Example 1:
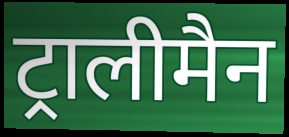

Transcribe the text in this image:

ट्रालीमैन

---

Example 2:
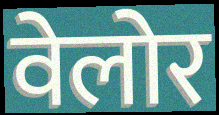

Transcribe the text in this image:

वेलोर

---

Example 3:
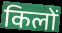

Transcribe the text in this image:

किलों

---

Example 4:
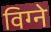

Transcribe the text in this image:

विग्ने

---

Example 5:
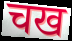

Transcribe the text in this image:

चख